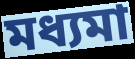
মধ্যমা